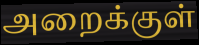
அறைக்குள்